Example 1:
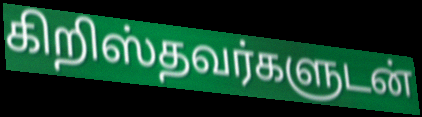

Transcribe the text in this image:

கிறிஸ்தவர்களுடன்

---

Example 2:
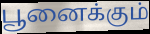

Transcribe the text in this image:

பூனைக்கும்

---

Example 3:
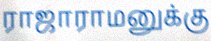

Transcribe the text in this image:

ராஜாராமனுக்கு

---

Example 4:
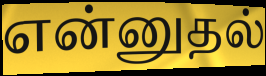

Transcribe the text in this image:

என்னுதல்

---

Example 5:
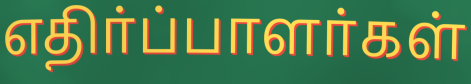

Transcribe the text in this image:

எதிர்ப்பாளர்கள்